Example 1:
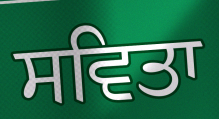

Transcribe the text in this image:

ਸਵਿਤਾ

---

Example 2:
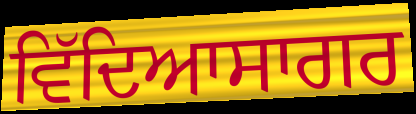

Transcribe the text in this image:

ਵਿੱਦਿਆਸਾਗਰ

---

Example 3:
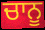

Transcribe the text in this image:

ਚਾਨੂ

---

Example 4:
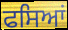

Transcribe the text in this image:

ਫਸਿਆਂ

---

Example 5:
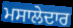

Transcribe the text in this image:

ਮਸਾਲੇਦਾਰ